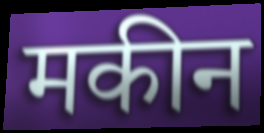
मकीन